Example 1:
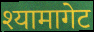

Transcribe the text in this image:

श्यामागेट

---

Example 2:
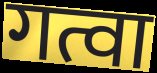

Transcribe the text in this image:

गत्वा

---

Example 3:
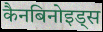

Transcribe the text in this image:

कैनबिनोइड्स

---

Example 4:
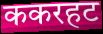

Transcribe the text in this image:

ककरहट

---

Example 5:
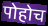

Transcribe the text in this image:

पोहोच